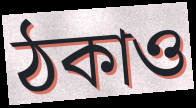
ঠকাও